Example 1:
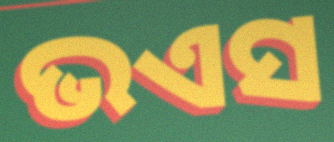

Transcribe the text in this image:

ଭଏସ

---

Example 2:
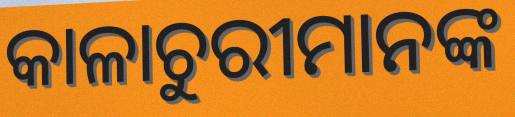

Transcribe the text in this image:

କାଳାଚୁରୀମାନଙ୍କ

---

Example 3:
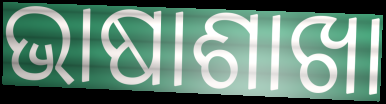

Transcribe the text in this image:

ଭାଷାଶାଖା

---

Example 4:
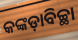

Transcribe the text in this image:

କଙ୍କଡ଼ାବିଚ୍ଛା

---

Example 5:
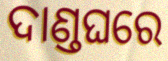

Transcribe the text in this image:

ଦାଣ୍ଡଘରେ